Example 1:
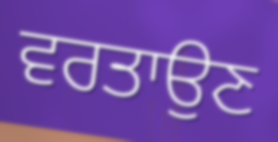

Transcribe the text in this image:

ਵਰਤਾਉਣ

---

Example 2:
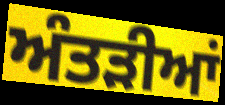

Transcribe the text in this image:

ਅੰਤੜੀਆਂ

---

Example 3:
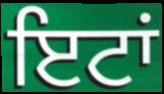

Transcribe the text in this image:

ਇਟਾਂ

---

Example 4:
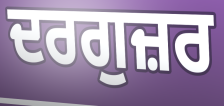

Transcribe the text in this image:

ਦਰਗੁਜ਼ਰ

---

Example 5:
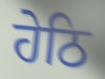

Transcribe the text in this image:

ਹੇਠਿ